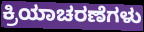
ಕ್ರಿಯಾಚರಣೆಗಳು